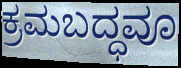
ಕ್ರಮಬದ್ಧವೂ